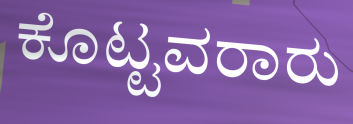
ಕೊಟ್ಟವರಾರು